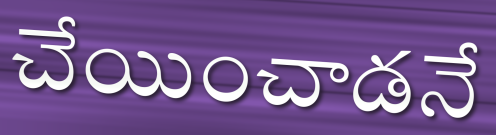
చేయించాడనే